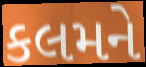
કલમને